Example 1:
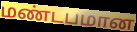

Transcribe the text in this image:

மண்டபமான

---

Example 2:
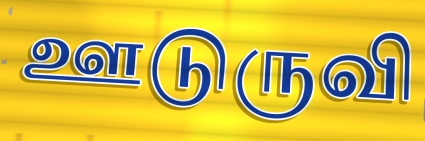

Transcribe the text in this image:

ஊடுருவி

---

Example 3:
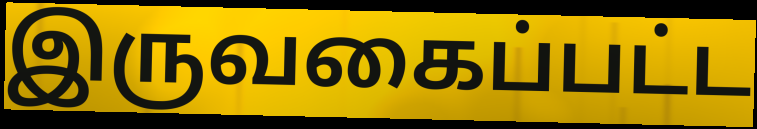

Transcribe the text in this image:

இருவகைப்பட்ட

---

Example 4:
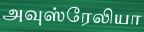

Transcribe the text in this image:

அவுஸ்ரேலியா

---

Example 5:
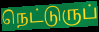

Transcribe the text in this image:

நெட்டுருப்